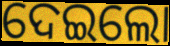
ଦେଇଲୋ